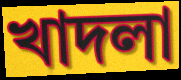
খাদলা